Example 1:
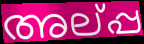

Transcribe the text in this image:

അല്പ്പ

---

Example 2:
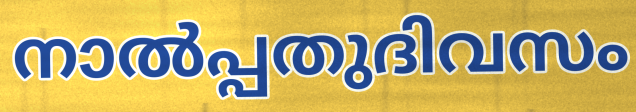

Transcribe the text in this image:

നാൽപ്പതുദിവസം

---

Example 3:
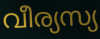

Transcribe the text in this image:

വീര്യസ്യ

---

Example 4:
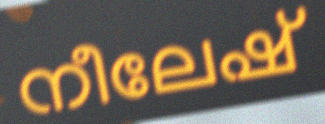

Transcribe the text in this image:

നീലേഷ്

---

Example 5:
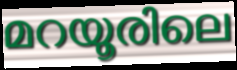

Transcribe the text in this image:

മറയൂരിലെ